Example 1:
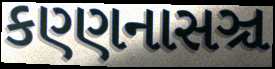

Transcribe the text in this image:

કણ્ણનાસઞ્ચ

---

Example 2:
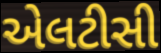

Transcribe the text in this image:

એલટીસી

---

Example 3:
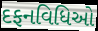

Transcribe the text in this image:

દફનવિધિઓ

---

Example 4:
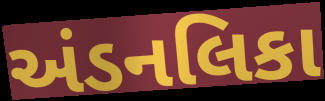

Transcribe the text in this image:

અંડનલિકા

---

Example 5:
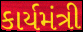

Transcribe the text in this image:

કાર્યમંત્રી